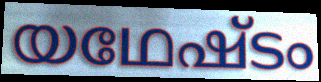
യഥേഷ്ടം